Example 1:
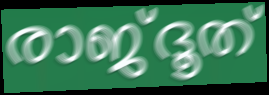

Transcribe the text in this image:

രാജ്ദൂത്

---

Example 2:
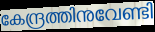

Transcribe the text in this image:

കേന്ദ്രത്തിനുവേണ്ടി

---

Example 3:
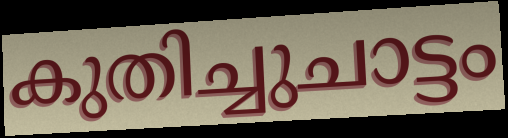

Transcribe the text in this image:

കുതിച്ചുചാട്ടം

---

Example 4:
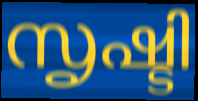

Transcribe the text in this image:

സൃഷ്ടി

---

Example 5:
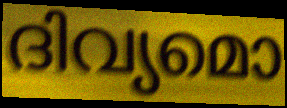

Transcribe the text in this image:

ദിവ്യമൊ